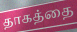
தாகத்தை